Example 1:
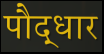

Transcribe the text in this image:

पौद्धार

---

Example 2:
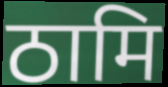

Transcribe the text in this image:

ठामि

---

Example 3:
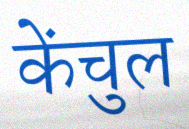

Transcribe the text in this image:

केंचुल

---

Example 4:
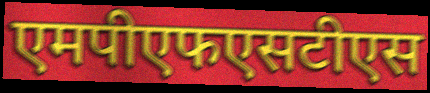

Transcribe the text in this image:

एमपीएफएसटीएस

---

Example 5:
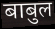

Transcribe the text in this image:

बाबुल